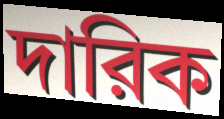
দারিক